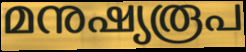
മനുഷ്യരൂപ